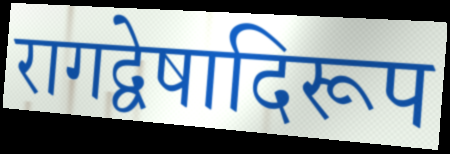
रागद्वेषादिरूप